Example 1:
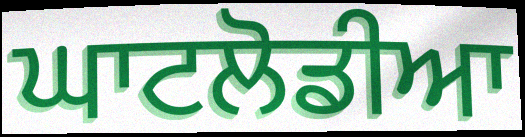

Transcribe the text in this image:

ਘਾਟਲੋਡੀਆ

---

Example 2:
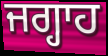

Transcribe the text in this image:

ਜਗ੍ਹਾਹ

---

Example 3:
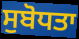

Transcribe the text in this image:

ਸੁਬੋਧਤਾ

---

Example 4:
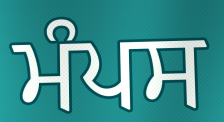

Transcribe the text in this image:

ਮੰਪਸ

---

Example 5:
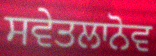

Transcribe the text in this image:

ਸਵੇਤਲਾਨੋਵ